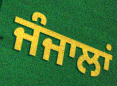
ਜੰਜਾਲਾਂ